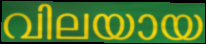
വിലയായ